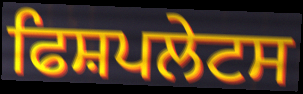
ਫਿਸ਼ਪਲੇਟਸ